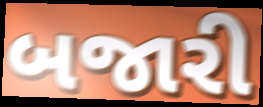
બજારી